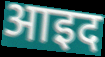
आइद